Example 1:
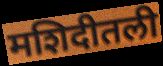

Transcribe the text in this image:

मशिदीतली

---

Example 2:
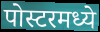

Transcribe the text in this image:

पोस्टरमध्ये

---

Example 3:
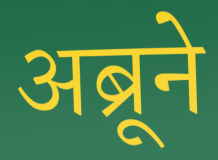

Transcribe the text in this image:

अब्रूने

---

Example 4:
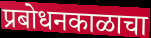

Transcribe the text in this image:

प्रबोधनकाळाचा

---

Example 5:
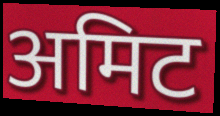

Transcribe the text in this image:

अमिट